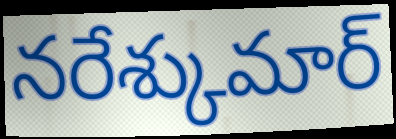
నరేశ్కుమార్